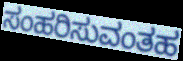
ಸಂಹರಿಸುವಂತಹ